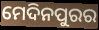
ମେଦିନପୁରର